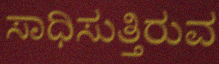
ಸಾಧಿಸುತ್ತಿರುವ